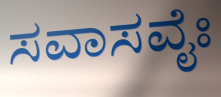
ಸವಾಸವೈಃ